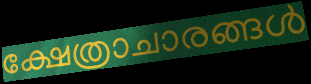
ക്ഷേത്രാചാരങ്ങൾ